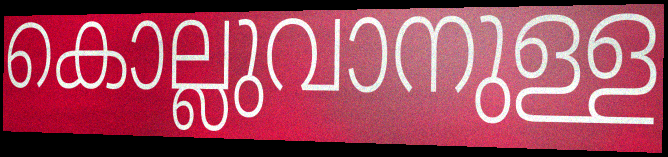
കൊല്ലുവാനുള്ള